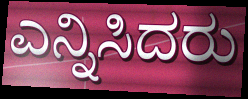
ಎನ್ನಿಸಿದರು